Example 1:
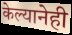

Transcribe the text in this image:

केल्यानेही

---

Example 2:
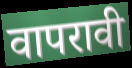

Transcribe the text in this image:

वापरावी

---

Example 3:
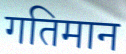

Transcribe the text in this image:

गतिमान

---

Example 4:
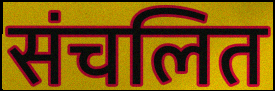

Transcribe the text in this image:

संचलित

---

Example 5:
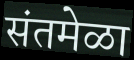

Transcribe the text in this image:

संतमेळा